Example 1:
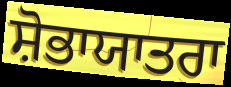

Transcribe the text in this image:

ਸ਼ੋਭਾਯਾਤਰਾ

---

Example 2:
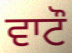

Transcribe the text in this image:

ਵਾਟੌ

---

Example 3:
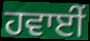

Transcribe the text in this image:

ਹਵਾਈਂ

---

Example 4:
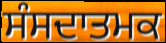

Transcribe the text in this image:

ਸੰਸਦਾਤਮਕ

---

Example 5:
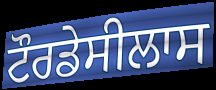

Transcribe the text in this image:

ਟੌਰਡੇਸੀਲਾਸ